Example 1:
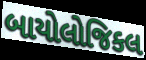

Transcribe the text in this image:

બાયોલોજિકલ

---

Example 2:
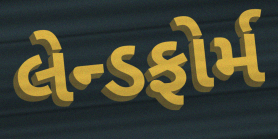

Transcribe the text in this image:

લેન્ડફોર્મ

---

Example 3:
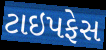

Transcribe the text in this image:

ટાઇપફેસ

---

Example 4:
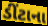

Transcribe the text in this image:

ડીંટાના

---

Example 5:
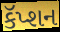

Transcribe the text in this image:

કૅપ્શન